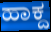
ಹಾಕ್ದ